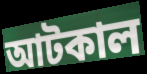
আটকাল